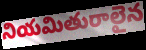
నియమితురాలైన